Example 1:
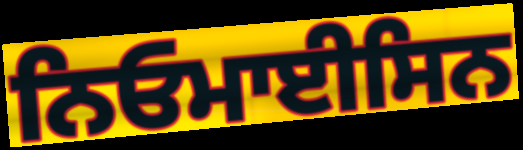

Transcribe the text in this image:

ਨਿਓਮਾਈਸਿਨ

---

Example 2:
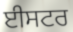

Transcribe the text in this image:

ਈਸਟਰ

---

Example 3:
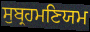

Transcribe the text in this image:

ਸੁਬ੍ਰਹਮਣਿਯਮ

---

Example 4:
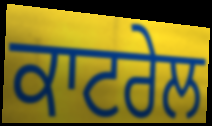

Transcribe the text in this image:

ਕਾਟਰੇਲ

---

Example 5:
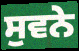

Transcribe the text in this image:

ਸੁਵਨੇ